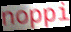
noppi